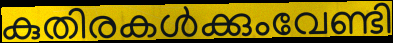
കുതിരകൾക്കുംവേണ്ടി